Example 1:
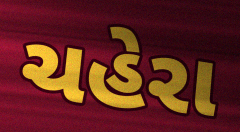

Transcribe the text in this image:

ચહેરા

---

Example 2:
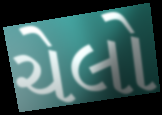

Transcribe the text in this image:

ચેલો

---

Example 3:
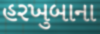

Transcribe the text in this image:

હરખુબાના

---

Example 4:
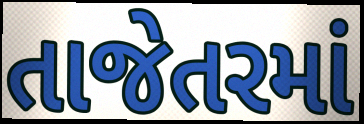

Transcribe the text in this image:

તાજેતરમાં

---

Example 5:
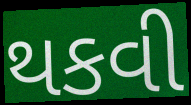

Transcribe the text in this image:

થકવી